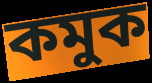
কমুক